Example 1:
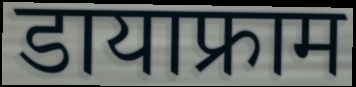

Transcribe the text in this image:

डायाफ्राम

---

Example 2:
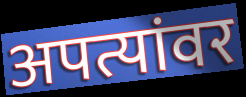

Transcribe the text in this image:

अपत्यांवर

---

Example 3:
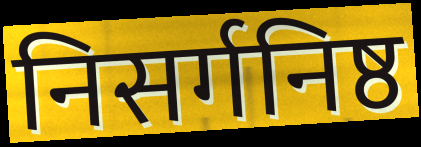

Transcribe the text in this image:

निसर्गनिष्ठ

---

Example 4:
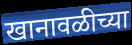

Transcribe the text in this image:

खानावळीच्या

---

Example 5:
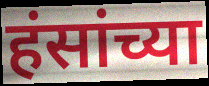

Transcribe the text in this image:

हंसांच्या